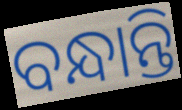
ବନ୍ଧାନ୍ତି